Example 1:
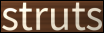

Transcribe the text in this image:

struts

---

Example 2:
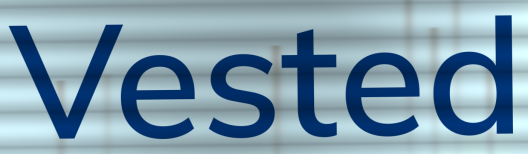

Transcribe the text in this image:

Vested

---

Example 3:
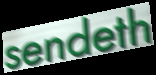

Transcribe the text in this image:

sendeth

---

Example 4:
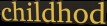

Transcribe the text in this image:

childhod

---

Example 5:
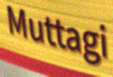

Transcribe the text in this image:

Muttagi